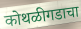
कोथळीगडाचा